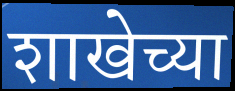
शाखेच्या